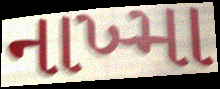
નાખ્મા